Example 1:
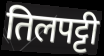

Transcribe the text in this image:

तिलपट्टी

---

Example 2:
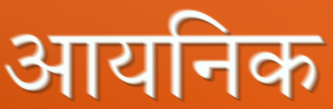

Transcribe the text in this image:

आयनिक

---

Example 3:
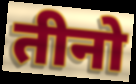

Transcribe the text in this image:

तीनो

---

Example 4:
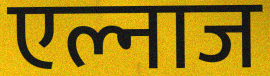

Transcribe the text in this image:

एल्नाज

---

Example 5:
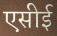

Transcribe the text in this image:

एसीई